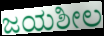
ಜಯಶೀಲ